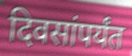
दिवसांपर्यंत